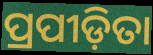
ପ୍ରପୀଡ଼ିତା